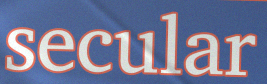
secular